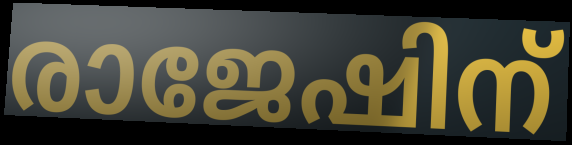
രാജേഷിന്